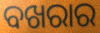
ବଖରାର